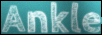
Ankle